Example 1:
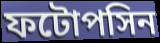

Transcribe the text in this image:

ফটোপসিন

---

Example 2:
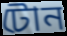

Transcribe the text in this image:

টোন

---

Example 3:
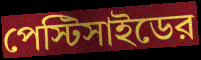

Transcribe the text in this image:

পেস্টিসাইডের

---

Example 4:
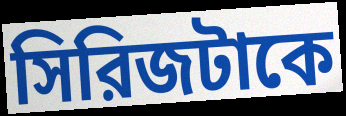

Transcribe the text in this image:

সিরিজটাকে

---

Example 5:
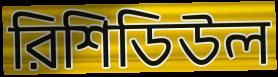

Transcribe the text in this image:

রিশিডিউল